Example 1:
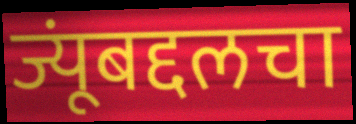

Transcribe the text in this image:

ज्यूंबद्दलचा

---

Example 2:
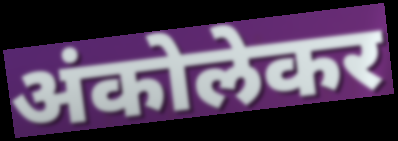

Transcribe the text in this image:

अंकोलेकर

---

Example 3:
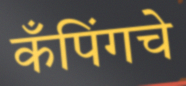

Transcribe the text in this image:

कँपिंगचे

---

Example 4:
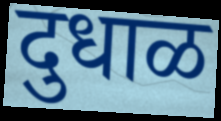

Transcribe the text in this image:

दुधाळ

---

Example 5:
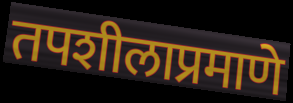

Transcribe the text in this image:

तपशीलाप्रमाणे